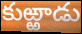
కుఱ్ఱాడు